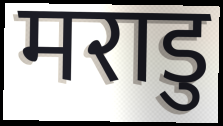
मराडु